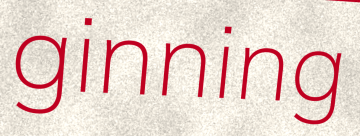
ginning